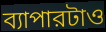
ব্যাপারটাও